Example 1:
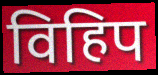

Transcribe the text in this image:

विहिप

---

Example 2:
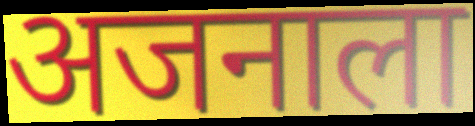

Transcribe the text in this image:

अजनाला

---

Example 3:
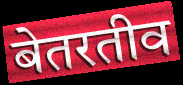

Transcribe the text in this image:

बेतरतीव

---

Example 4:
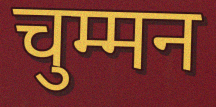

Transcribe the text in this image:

चुम्मन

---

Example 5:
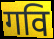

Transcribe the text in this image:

गवि